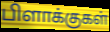
பிளாக்குகள்